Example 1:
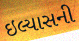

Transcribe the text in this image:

ઇલ્યાસની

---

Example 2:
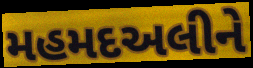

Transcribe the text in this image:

મહમદઅલીને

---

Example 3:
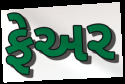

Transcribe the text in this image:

ફેઅર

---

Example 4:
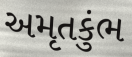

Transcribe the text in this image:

અમૃતકુંભ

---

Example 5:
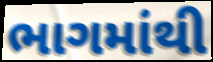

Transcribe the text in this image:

ભાગમાંથી